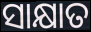
ସାକ୍ଷାତ